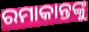
ରମାକାନ୍ତଙ୍କୁ